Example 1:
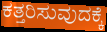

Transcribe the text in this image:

ಕತ್ತರಿಸುವುದಕ್ಕೆ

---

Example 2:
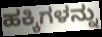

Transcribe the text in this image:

ಹಕ್ಕಿಗಳನ್ನು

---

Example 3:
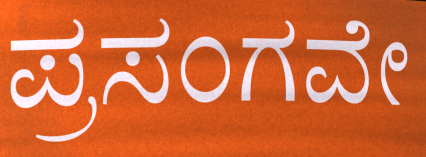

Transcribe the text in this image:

ಪ್ರಸಂಗವೇ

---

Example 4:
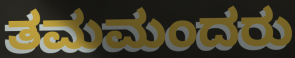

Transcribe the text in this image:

ತಮಮಂದರು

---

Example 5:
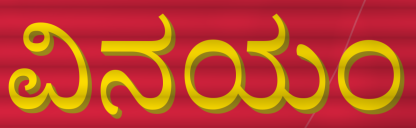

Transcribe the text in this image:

ವಿನಯಂ